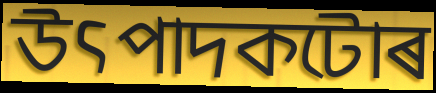
উৎপাদকটোৰ